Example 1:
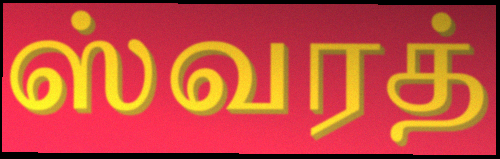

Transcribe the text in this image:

ஸ்வரத்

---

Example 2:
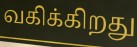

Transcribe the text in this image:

வகிக்கிறது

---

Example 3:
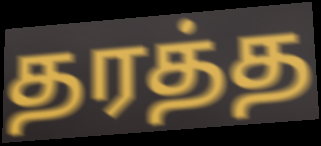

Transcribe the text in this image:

தரத்த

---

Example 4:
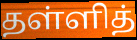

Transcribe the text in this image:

தள்ளித்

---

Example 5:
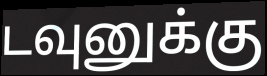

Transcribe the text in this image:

டவுனுக்கு